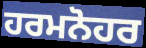
ਹਰਮਨੋਹਰ